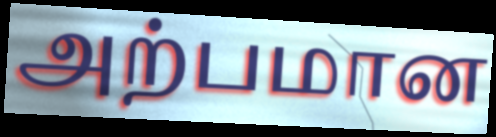
அற்பமான